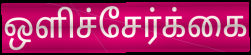
ஒளிச்சேர்க்கை